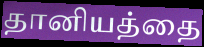
தானியத்தை